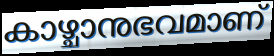
കാഴ്ചാനുഭവമാണ്